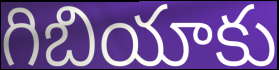
గిబియాకు